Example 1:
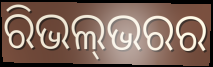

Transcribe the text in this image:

ରିଭଲ୍‍ଭରର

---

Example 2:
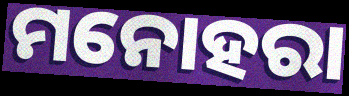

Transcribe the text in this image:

ମନୋହରା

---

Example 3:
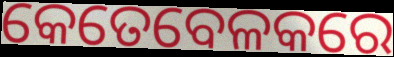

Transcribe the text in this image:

କେତେବେଳକରେ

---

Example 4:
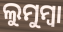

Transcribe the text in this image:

ଲୁମୁମ୍ବା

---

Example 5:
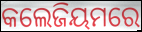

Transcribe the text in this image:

କଲେଜିୟମରେ